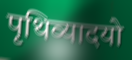
पृथिव्यादयो